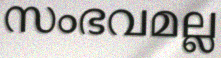
സംഭവമല്ല